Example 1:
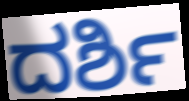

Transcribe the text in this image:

ದರ್ಶಿ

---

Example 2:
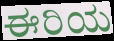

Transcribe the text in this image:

ಈರಿಯ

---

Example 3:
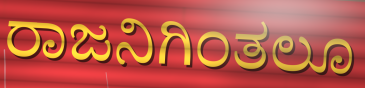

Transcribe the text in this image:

ರಾಜನಿಗಿಂತಲೂ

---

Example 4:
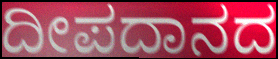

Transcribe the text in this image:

ದೀಪದಾನದ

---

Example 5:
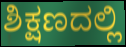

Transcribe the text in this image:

ಶಿಕ್ಷಣದಲ್ಲಿ